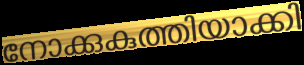
നോക്കുകുത്തിയാക്കി